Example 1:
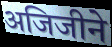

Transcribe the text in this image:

अजिजीने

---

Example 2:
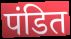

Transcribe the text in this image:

पंडित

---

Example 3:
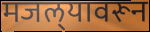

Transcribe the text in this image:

मजल्यावरून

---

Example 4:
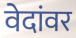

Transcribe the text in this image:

वेदांवर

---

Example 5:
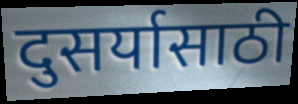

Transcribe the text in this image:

दुसर्यासाठी